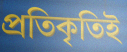
প্রতিকৃতিই